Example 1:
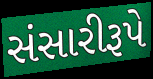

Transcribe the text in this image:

સંસારીરૂપે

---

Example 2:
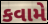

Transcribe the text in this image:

કવામે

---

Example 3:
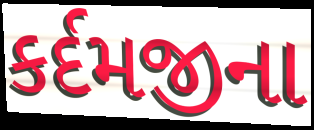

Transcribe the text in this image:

કર્દમજીના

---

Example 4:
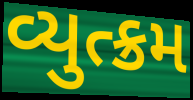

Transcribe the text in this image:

વ્યુત્ક્રમ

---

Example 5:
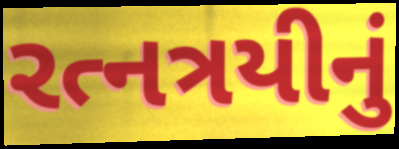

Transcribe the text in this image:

રત્નત્રયીનું